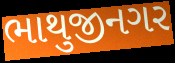
ભાથુજીનગર